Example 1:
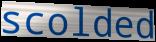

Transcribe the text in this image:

scolded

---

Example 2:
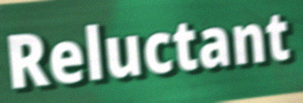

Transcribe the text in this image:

Reluctant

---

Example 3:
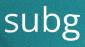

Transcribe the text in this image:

subg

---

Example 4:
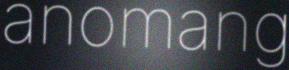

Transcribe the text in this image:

anomang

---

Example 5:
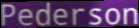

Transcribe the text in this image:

Pederson